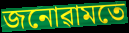
জনোৱামতে